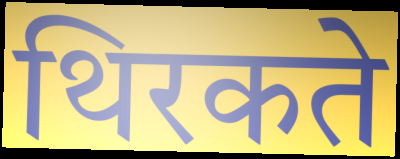
थिरकते